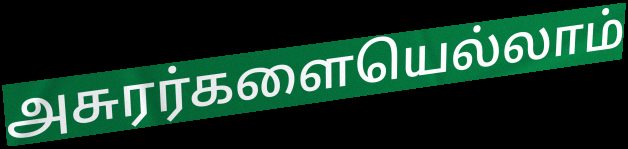
அசுரர்களையெல்லாம்